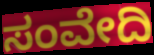
ಸಂವೇದಿ